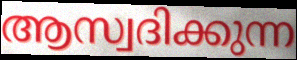
ആസ്വദിക്കുന്ന